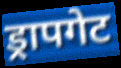
ड्रापगेट